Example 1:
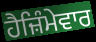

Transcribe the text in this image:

ਹੈਜ਼ਿੰਮੇਵਾਰ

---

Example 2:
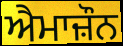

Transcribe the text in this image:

ਐਮਾਜ਼ੌਨ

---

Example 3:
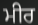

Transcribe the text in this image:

ਮੀਰ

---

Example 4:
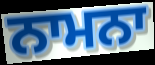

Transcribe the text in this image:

ਨਾਮਨਾ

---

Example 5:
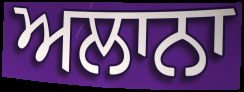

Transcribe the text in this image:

ਅਲਾਨਾ